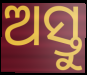
ଅସ୍ତୁ